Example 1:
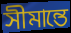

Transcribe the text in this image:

সীমান্তে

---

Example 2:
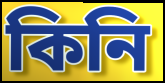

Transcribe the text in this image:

কিনি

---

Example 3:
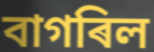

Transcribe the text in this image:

বাগৰিল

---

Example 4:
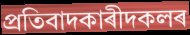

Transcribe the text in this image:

প্ৰতিবাদকাৰীদকলৰ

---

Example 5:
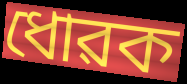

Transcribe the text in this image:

ধোৱক